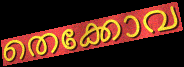
തെക്കോവ